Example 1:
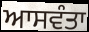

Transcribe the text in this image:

ਆਸਵੰਤਾ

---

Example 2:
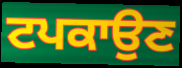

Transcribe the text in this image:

ਟਪਕਾਉਣ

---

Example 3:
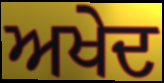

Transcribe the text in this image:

ਅਖੇਦ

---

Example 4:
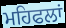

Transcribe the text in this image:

ਮਹਿਫਲਾਂ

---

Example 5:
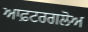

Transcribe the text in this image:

ਆਫ਼ਟਰਗਲੋਅ